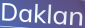
Daklan